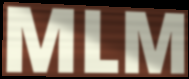
MLM